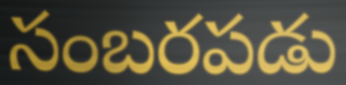
సంబరపడు